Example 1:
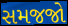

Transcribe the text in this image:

સમજજો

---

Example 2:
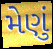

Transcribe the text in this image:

મેણું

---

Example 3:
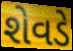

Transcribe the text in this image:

શેવડે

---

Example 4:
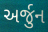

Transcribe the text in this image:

અર્જુન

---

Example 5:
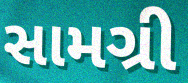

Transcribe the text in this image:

સામગ્રી